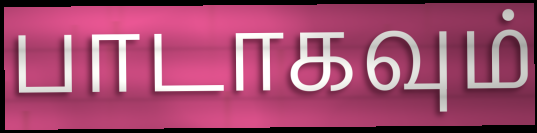
பாடாகவும்